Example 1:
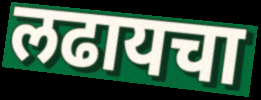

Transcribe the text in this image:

लढायचा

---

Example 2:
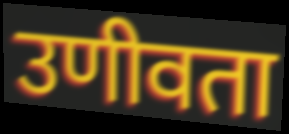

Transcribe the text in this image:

उणीवता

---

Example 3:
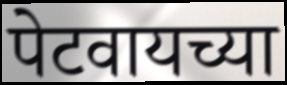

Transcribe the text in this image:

पेटवायच्या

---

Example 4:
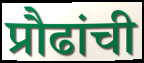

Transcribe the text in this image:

प्रौढांची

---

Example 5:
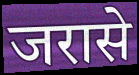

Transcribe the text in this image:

जरासे